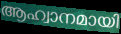
ആഹ്വാനമായി